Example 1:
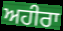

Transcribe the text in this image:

ਅਹੀਰਾ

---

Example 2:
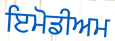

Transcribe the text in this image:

ਇਮੋਡੀਅਮ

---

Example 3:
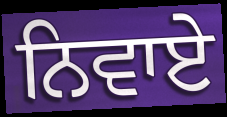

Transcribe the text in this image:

ਨਿਵਾਏ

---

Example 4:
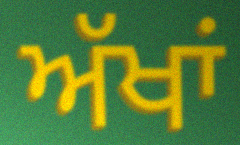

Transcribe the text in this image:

ਅੱਖਾਂ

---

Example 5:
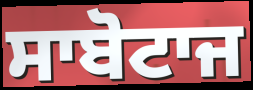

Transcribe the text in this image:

ਸਾਬੋਟਾਜ